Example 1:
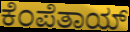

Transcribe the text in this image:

ಕೆಂಪೆತಾಯ್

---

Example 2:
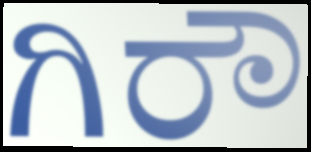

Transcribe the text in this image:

ಗಿರೌ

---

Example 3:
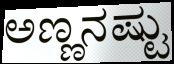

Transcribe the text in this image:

ಅಣ್ಣನಷ್ಟು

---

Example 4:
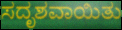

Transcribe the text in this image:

ಸದೃಶವಾಯಿತು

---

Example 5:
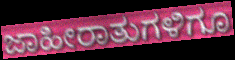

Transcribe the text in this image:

ಜಾಹೀರಾತುಗಳಿಗೂ